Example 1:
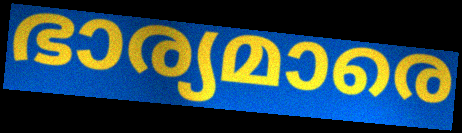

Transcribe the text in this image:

ഭാര്യമാരെ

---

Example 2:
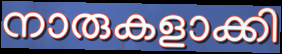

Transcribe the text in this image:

നാരുകളാക്കി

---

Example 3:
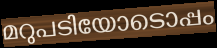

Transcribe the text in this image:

മറുപടിയോടൊപ്പം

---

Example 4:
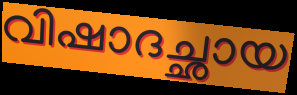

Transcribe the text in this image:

വിഷാദച്ഛായ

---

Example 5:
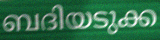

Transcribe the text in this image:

ബദിയടുക്ക